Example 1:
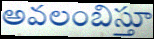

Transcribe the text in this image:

అవలంబిస్తూ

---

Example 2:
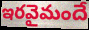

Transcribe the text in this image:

ఇరవైమందే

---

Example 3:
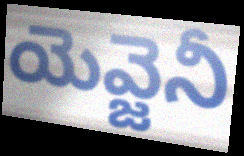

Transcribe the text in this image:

యెవ్జెనీ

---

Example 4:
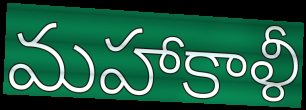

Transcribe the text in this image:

మహాకాళీ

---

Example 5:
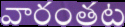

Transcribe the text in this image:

వారంతట